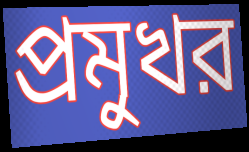
প্রমুখর